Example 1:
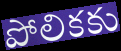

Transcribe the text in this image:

పోలికకు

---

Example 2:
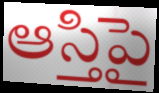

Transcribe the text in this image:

ఆస్తిపై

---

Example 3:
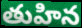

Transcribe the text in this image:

తుహిన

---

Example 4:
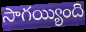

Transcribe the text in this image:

సాగయ్యింది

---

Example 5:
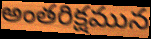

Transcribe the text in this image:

అంతరిక్షమున